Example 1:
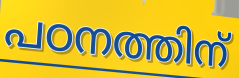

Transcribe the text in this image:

പഠനത്തിന്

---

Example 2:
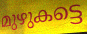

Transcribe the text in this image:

മുഴുകട്ടെ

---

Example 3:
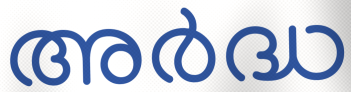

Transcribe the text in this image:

അർദ്ധ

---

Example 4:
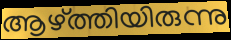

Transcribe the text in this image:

ആഴ്ത്തിയിരുന്നു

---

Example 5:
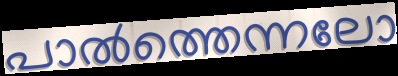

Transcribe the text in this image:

പാൽത്തെന്നലോ